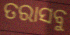
ତରାସବୁ